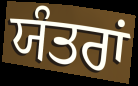
ਯੰਤਰਾਂ